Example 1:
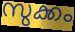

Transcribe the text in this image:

സുക്കം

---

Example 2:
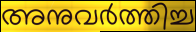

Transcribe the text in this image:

അനുവർത്തിച്ച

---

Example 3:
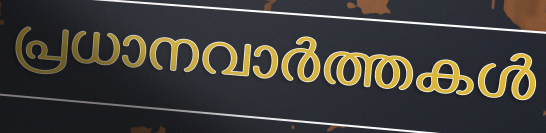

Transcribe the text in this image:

പ്രധാനവാർത്തകൾ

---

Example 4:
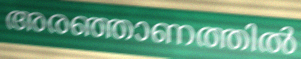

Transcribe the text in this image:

അരഞ്ഞാണത്തിൽ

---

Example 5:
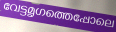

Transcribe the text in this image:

വേട്ടമൃഗത്തെപ്പോലെ